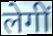
लेगीं